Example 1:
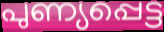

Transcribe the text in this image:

പുണ്യപ്പെട്ട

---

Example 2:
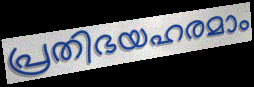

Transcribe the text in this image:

പ്രതിഭയഹരമാം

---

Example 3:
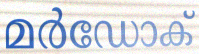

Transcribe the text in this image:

മർഡോക്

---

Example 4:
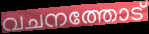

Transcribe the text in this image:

വചനത്തോട്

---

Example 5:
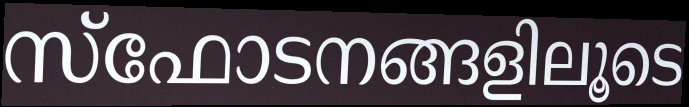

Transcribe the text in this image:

സ്ഫോടനങ്ങളിലൂടെ